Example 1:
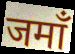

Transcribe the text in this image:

जमाँ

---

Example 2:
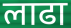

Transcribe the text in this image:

लाढा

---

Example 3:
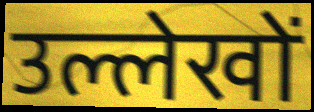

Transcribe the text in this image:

उल्लेखों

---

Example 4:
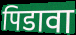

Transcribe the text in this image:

पिडावा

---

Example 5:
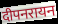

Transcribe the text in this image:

दीपनरायन